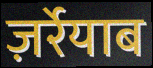
ज़र्रेयाब